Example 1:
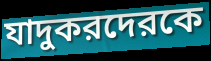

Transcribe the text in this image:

যাদুকরদেরকে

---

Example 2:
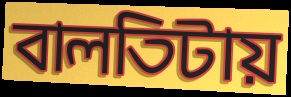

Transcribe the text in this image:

বালতিটায়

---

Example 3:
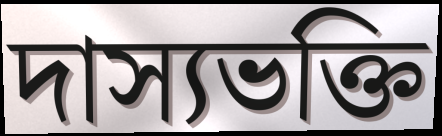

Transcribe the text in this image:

দাস্যভক্তি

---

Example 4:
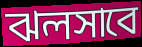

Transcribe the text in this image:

ঝলসাবে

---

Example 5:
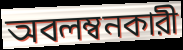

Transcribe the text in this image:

অবলম্বনকারী